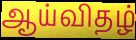
ஆய்விதழ்